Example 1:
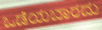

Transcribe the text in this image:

ಒಡೆಯಬಾರದು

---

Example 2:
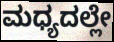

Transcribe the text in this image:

ಮಧ್ಯದಲ್ಲೇ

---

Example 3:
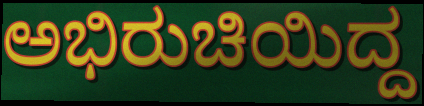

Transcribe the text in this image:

ಅಭಿರುಚಿಯಿದ್ದ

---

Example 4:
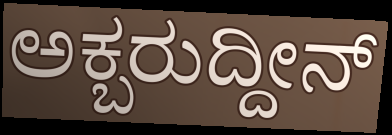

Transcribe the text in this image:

ಅಕ್ಬರುದ್ದೀನ್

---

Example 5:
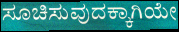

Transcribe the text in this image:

ಸೂಚಿಸುವುದಕ್ಕಾಗಿಯೇ